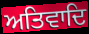
ਅਤਿਵਾਦਿ